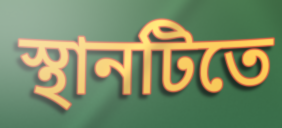
স্থানটিতে